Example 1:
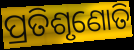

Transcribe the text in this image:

ପ୍ରତିଶୃଣୋତି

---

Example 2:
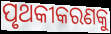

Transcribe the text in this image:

ପୃଥକୀକରଣକୁ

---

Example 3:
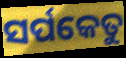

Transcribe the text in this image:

ସର୍ପକେତୁ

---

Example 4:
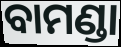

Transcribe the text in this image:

ବାମଣ୍ଡା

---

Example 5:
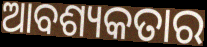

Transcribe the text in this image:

ଆବଶ୍ୟକତାର